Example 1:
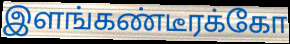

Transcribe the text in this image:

இளங்கண்டீரக்கோ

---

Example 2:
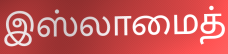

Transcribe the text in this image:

இஸ்லாமைத்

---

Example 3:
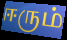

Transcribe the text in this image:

ஈரும்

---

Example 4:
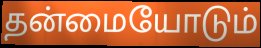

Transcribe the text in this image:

தன்மையோடும்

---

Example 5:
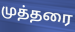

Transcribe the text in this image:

முத்தரை